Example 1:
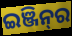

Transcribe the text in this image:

ଇଞ୍ଜିନ୍‌ର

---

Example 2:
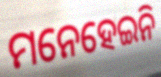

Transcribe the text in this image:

ମନେହେଇନି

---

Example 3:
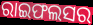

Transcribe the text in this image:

ରାଇଫଲସର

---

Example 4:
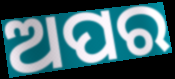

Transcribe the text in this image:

ଅପର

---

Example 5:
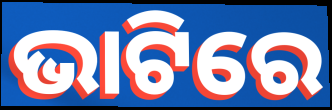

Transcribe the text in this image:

ଭାଟିରେ